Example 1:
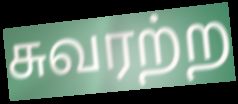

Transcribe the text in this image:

சுவரற்ற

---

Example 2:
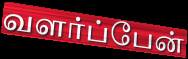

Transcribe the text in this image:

வளர்ப்பேன்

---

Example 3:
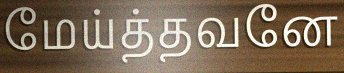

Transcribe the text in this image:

மேய்த்தவனே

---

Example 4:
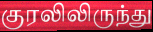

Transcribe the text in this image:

குரலிலிருந்து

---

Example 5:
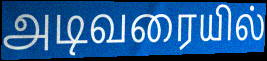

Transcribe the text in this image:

அடிவரையில்